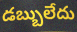
డబ్బులేదు